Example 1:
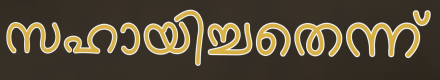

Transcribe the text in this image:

സഹായിച്ചതെന്ന്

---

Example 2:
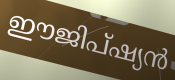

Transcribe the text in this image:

ഈജിപ്ഷ്യൻ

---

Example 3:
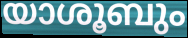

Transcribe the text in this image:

യാശൂബും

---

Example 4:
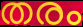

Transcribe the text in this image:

തരം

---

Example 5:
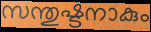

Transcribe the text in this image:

സന്തുഷ്ടനാകും